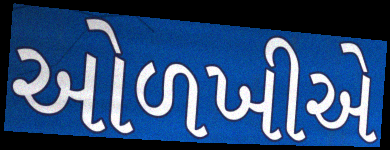
ઓળખીએ